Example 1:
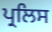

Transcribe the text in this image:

ਪ੍ਰਲਿਸ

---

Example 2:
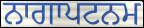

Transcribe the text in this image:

ਨਾਗਾਪਟਨਮ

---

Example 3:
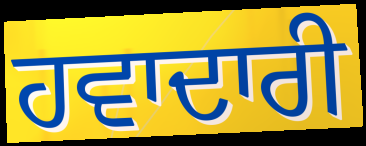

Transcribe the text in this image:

ਹਵਾਦਾਰੀ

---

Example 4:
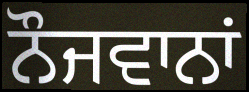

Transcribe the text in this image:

ਨੌਜਵਾਨਾਂ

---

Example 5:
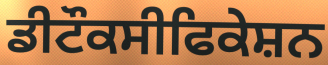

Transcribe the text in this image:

ਡੀਟੌਕਸੀਫਿਕੇਸ਼ਨ